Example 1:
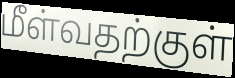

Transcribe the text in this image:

மீள்வதற்குள்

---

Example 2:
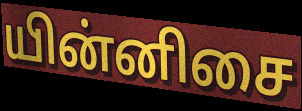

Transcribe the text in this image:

யின்னிசை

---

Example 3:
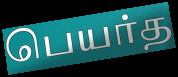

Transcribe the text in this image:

பெயர்த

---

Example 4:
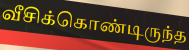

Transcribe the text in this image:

வீசிக்கொண்டிருந்த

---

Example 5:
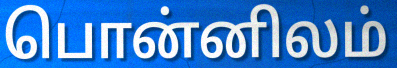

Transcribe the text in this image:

பொன்னிலம்